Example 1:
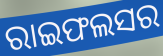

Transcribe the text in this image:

ରାଇଫଲସର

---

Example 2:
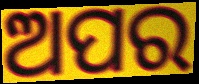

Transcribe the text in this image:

ଅପର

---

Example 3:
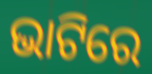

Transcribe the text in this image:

ଭାଟିରେ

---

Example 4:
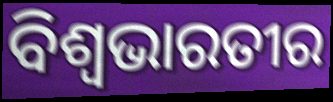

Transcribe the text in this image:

ବିଶ୍ୱଭାରତୀର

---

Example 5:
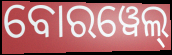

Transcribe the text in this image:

ବୋରୱେଲ୍